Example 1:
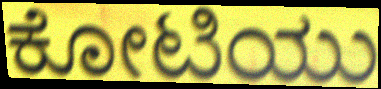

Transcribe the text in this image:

ಕೋಟಿಯು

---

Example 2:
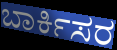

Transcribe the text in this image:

ಬಾರ್ಕಿಸರ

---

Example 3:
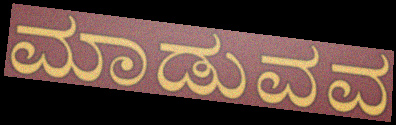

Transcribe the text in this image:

ಮಾಡುವವ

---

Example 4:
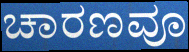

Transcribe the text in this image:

ಚಾರಣವೂ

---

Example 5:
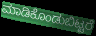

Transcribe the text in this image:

ಮಾಡಿಕೊಂಡುಬಿಟ್ಟರೆ